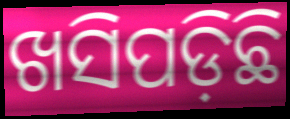
ଖସିପଡ଼ିଛି